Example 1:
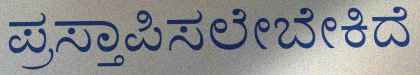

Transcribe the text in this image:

ಪ್ರಸ್ತಾಪಿಸಲೇಬೇಕಿದೆ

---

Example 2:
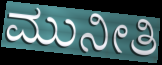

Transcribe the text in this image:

ಮುನೀತಿ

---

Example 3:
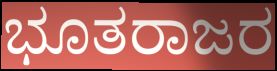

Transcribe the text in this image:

ಭೂತರಾಜರ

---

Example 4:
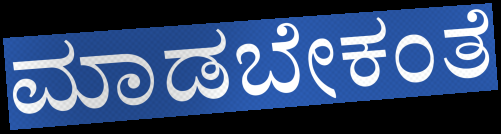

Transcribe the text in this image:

ಮಾಡಬೇಕಂತೆ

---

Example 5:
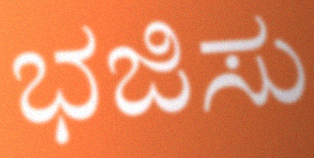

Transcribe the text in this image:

ಭಜಿಸು